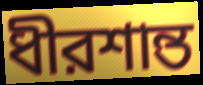
ধীরশান্ত